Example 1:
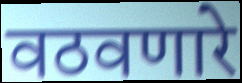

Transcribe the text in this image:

वठवणारे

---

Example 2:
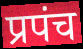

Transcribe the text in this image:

प्रपंच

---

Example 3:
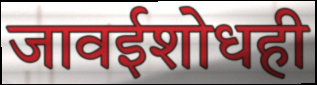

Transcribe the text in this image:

जावईशोधही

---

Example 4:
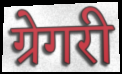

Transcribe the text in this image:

ग्रेगरी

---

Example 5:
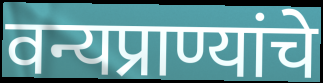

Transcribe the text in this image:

वन्यप्राण्यांचे